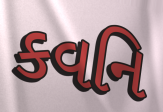
કવનિ